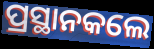
ପ୍ରସ୍ଥାନକଲେ